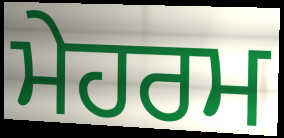
ਮੇਹਰਮ